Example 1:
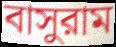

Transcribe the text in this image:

বাসুরাম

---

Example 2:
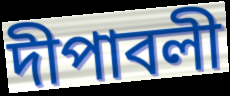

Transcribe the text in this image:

দীপাবলী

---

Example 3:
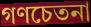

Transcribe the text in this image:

গণচেতনা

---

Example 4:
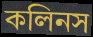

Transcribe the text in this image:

কলিনস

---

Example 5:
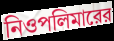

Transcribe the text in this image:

নিওপলিমারের